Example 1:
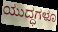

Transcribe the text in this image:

ಯುದ್ಧಗಳೂ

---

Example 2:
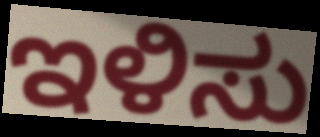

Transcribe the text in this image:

ಇಳಿಸು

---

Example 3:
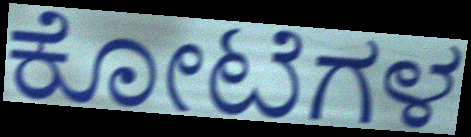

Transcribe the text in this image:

ಕೋಟೆಗಳ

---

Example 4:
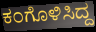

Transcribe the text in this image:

ಕಂಗೊಳಿಸಿದ್ದ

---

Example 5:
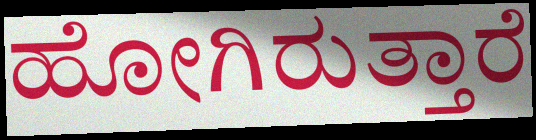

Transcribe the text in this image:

ಹೋಗಿರುತ್ತಾರೆ